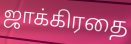
ஜாக்கிரதை